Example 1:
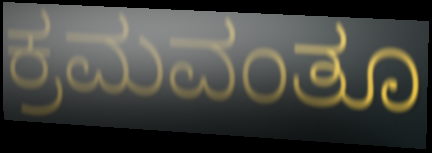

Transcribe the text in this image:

ಕ್ರಮವಂತೂ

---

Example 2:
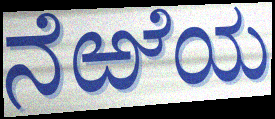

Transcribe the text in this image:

ನೆಱೆಯ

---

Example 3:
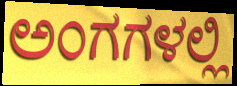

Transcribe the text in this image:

ಅಂಗಗಳಲ್ಲಿ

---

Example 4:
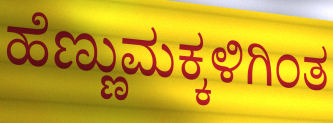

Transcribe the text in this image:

ಹೆಣ್ಣುಮಕ್ಕಳಿಗಿಂತ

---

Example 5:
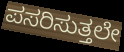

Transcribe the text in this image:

ಪಸರಿಸುತ್ತಲೇ